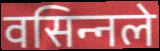
वसिन्नले